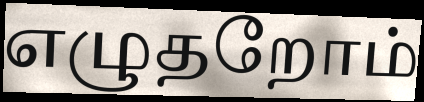
எழுதறோம்